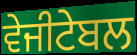
ਵੇਜੀਟੇਬਲ